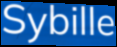
Sybille